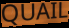
QUAIL